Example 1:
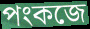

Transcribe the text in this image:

পংকজে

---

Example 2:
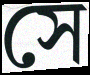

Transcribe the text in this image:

সে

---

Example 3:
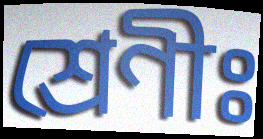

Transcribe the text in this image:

শ্ৰেণীঃ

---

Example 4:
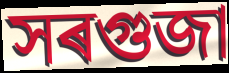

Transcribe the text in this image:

সৰগুজা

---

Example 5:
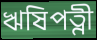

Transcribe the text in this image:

ঋষিপত্নী